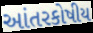
આંતરકોષીય